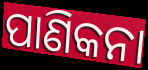
ପାଣିକନା